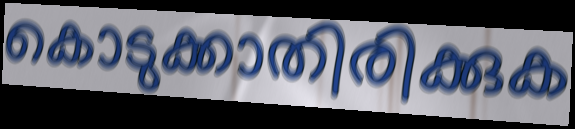
കൊടുക്കാതിരിക്കുക